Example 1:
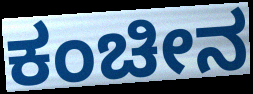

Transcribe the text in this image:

ಕಂಚೀನ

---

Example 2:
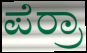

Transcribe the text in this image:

ಪೆರ್ರಾ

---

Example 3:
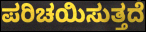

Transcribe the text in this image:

ಪರಿಚಯಿಸುತ್ತದೆ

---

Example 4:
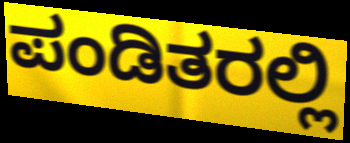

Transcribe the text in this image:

ಪಂಡಿತರಲ್ಲಿ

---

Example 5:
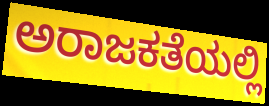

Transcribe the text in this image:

ಅರಾಜಕತೆಯಲ್ಲಿ